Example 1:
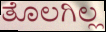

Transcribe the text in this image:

ತೊಲಗಿಲ್ಲ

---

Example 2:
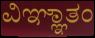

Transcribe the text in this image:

ವಿಞ್ಞಾತಂ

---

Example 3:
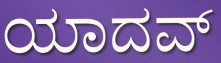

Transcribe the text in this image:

ಯಾದವ್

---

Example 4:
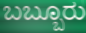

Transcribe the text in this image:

ಬಬ್ಬೂರು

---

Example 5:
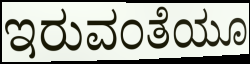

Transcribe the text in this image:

ಇರುವಂತೆಯೂ